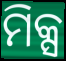
ମିକ୍ସ